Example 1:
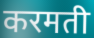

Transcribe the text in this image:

करमती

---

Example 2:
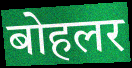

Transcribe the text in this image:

बोहलर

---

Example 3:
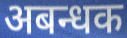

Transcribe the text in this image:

अबन्धक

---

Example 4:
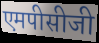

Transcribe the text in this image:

एमपीसीजी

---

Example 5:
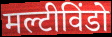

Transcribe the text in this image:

मल्टीविंडो